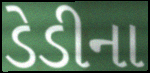
ડેડીના